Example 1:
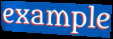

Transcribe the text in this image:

example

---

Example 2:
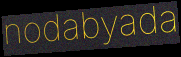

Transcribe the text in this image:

nodabyada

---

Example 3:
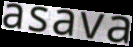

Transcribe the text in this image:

asava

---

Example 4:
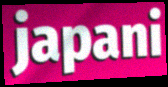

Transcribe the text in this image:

japani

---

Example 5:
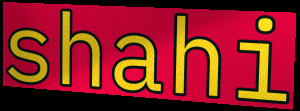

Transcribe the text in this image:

shahi